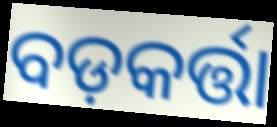
ବଡ଼କର୍ତ୍ତା